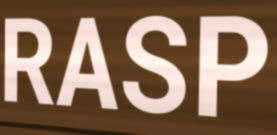
RASP